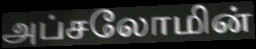
அப்சலோமின்